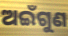
ଅଇଁଗୁଣ